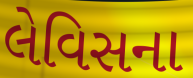
લેવિસના